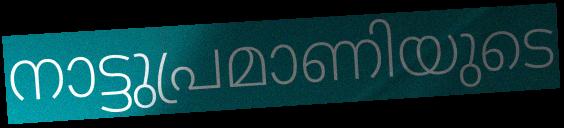
നാട്ടുപ്രമാണിയുടെ